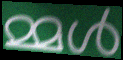
മ്മൾ